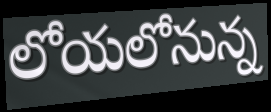
లోయలోనున్న